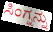
ಸಿಂಗ್ನನ್ನು